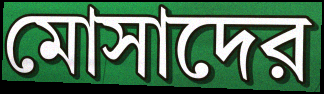
মোসাদের